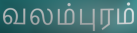
வலம்புரம்